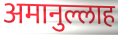
अमानुल्लाह